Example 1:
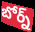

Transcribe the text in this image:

బోర్న్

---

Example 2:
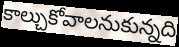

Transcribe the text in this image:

కాల్చుకోవాలనుకున్నది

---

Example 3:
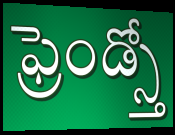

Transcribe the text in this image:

ఫ్రెండ్స్తో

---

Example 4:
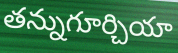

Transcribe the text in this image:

తన్నుగూర్చియా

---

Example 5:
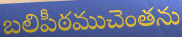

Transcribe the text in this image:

బలిపీఠముచెంతను